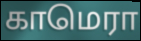
காமெரா